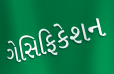
ગેસિફિકેશન